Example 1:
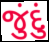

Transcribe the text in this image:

જુંદું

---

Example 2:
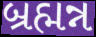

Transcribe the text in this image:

બ્રહ્મન્ન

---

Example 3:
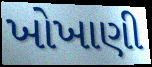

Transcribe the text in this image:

ખોખાણી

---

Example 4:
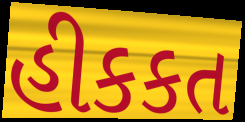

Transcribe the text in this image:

હીકકત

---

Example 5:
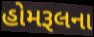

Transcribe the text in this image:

હોમરૂલના